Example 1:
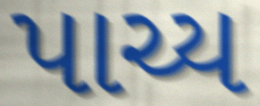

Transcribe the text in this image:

પાચ્ય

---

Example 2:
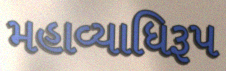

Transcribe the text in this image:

મહાવ્યાધિરૂપ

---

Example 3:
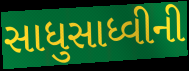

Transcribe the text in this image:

સાધુસાધ્વીની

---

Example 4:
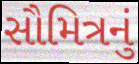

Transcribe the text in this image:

સૌમિત્રનું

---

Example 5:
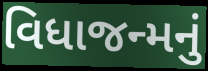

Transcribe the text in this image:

વિધાજન્મનું